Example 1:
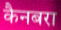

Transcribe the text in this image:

कैनबरा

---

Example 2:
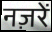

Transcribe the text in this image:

नज़रें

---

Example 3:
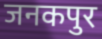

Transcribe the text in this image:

जनकपुर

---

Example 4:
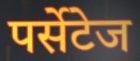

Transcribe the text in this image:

पर्सेटेज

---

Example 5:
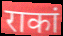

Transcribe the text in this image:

राकां